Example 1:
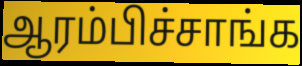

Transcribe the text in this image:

ஆரம்பிச்சாங்க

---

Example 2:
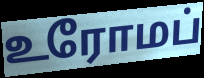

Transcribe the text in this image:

உரோமப்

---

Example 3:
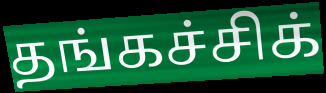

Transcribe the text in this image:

தங்கச்சிக்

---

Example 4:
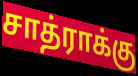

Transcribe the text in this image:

சாத்ராக்கு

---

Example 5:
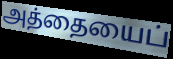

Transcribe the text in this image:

அத்தையைப்